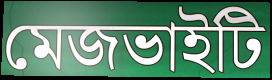
মেজভাইটি